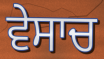
ਵੇਸਾਚ